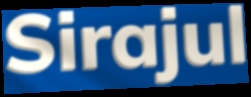
Sirajul